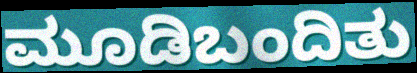
ಮೂಡಿಬಂದಿತು